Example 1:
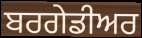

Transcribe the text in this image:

ਬਰਗੇਡੀਅਰ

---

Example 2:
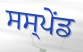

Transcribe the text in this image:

ਸਸ੍ਪੇੰਡ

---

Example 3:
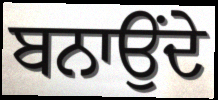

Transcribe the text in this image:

ਬਨਾਉਂਦੇ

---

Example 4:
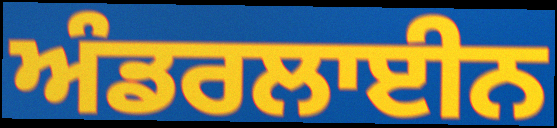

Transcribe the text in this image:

ਅੰਡਰਲਾਈਨ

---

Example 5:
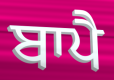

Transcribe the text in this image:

ਬਾਪੈ